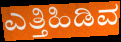
ಎತ್ತಿಹಿಡಿವ